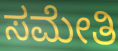
ಸಮೇತಿ